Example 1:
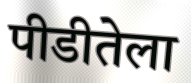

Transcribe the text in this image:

पीडीतेला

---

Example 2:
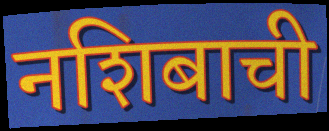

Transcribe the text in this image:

नशिबाची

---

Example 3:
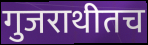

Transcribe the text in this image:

गुजराथीतच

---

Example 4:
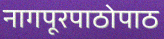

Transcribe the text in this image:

नागपूरपाठोपाठ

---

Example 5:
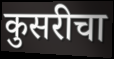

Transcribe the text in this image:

कुसरीचा